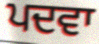
ਪਦਵਾ